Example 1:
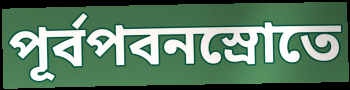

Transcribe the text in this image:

পূর্বপবনস্রোতে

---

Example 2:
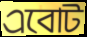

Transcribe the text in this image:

এবোট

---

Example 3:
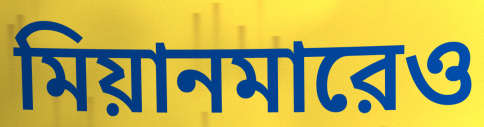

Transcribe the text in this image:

মিয়ানমারেও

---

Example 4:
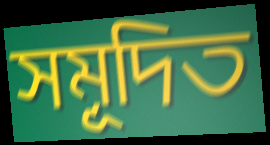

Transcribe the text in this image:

সমূদিত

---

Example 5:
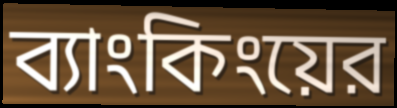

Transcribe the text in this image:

ব্যাংকিংয়ের